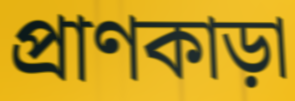
প্রাণকাড়া